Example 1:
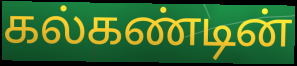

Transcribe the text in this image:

கல்கண்டின்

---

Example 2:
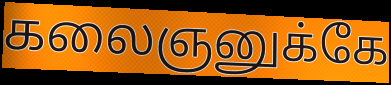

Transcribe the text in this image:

கலைஞனுக்கே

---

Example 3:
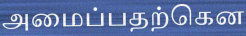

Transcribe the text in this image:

அமைப்பதற்கென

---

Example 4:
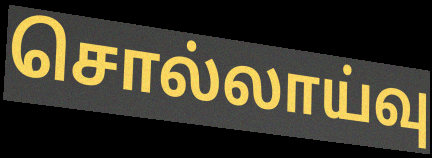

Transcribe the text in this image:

சொல்லாய்வு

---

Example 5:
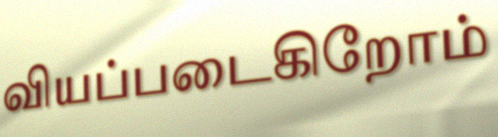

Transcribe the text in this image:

வியப்படைகிறோம்